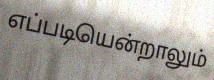
எப்படியென்றாலும்